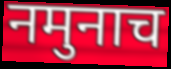
नमुनाच